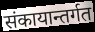
संकायान्तर्गत